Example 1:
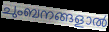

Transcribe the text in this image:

ചുംബനങ്ങളാൽ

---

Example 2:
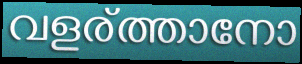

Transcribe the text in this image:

വളര്ത്താനോ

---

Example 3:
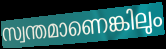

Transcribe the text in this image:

സ്വന്തമാണെങ്കിലും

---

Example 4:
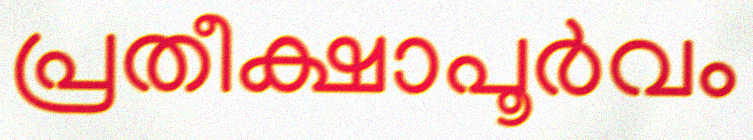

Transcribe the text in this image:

പ്രതീക്ഷാപൂർവം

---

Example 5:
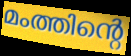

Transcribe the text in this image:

മംത്തിന്റെ